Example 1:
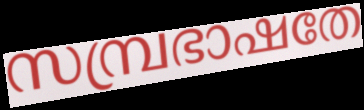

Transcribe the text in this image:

സമ്പ്രഭാഷതേ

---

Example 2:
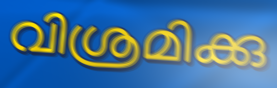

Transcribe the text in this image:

വിശ്രമിക്കു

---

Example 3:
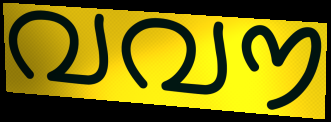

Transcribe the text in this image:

വവൗ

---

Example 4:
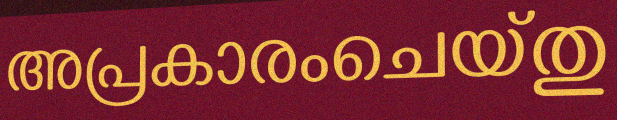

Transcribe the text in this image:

അപ്രകാരംചെയ്തു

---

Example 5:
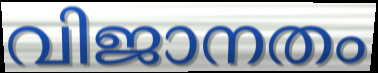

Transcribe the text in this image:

വിജാനതം